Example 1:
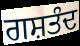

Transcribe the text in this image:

ਗਸ਼ਤੰਦ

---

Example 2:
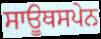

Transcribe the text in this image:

ਸਾਊਥਸਪੇਨ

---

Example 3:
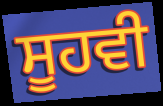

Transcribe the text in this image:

ਸੂਹਵੀ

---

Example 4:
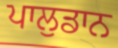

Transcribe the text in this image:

ਪਾਲੁਡਾਨ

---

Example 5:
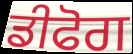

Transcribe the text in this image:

ਡੀਫੋਗ